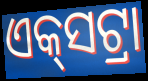
ଏକ୍‍ସଟ୍ରା